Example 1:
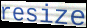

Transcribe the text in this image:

resize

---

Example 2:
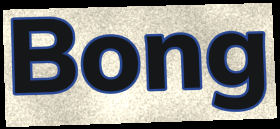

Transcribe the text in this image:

Bong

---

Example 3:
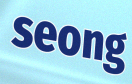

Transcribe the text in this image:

seong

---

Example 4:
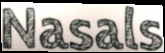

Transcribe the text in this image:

Nasals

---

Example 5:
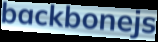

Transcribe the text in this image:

backbonejs